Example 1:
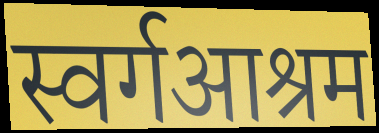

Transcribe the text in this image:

स्वर्गआश्रम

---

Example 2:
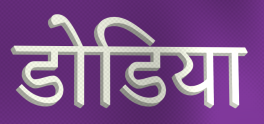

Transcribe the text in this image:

डोडिया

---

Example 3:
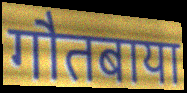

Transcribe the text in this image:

गौतबाया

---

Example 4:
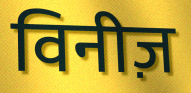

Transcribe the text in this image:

विनीज़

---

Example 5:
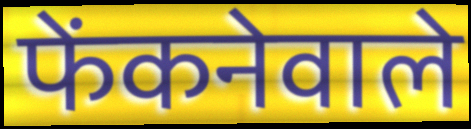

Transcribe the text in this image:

फेंकनेवाले